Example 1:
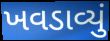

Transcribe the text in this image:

ખવડાવ્યું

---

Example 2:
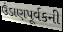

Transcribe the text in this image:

ઉંડાણપૂર્વકની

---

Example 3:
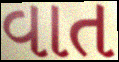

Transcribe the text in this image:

વાત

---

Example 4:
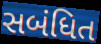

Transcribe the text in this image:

સબંધિત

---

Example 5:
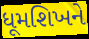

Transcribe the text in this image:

ધૂમશિખને